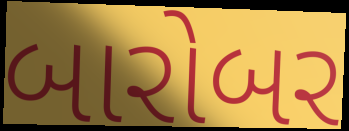
બારોબર